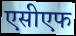
एसीएफ